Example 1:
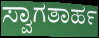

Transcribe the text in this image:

ಸ್ವಾಗತಾರ್ಹ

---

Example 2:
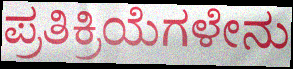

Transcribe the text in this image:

ಪ್ರತಿಕ್ರಿಯೆಗಳೇನು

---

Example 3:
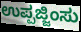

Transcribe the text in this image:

ಉಪ್ಪಜ್ಜಿಂಸು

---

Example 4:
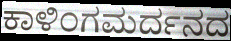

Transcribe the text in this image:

ಕಾಳಿಂಗಮರ್ದನದ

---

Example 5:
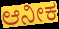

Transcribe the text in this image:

ಆನೀಕ